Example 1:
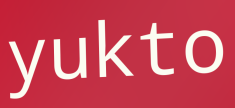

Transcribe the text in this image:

yukto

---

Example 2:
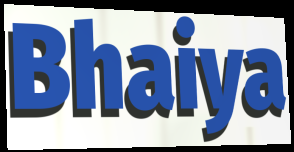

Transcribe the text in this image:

Bhaiya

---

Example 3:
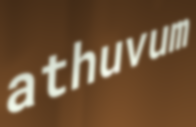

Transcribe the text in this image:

athuvum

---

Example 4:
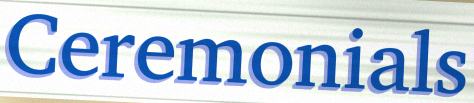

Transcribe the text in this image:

Ceremonials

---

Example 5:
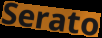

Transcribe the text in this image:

Serato